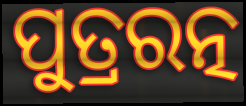
ପୁତ୍ରରତ୍ନ